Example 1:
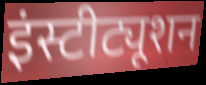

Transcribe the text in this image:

इंस्‍टीट्यूशन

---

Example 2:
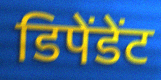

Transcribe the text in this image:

डिपेंडेंट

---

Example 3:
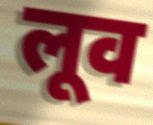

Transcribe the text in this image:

लूव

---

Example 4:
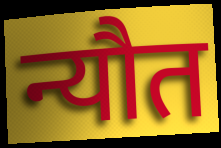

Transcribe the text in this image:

न्यौत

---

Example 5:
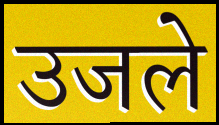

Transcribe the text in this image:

उजले